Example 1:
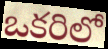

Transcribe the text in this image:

ఒకరిలో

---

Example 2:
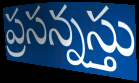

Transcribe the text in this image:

ప్రసన్నస్తు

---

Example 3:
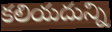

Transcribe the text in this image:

కలియదున్ని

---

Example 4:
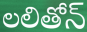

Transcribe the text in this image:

లలితోన్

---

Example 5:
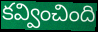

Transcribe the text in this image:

కవ్వించింది